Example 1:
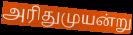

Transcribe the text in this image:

அரிதுமுயன்று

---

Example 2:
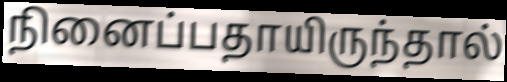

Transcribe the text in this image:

நினைப்பதாயிருந்தால்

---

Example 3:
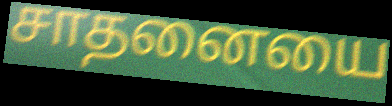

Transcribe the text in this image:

சாதனையை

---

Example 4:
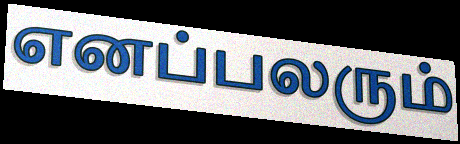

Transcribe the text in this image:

எனப்பலரும்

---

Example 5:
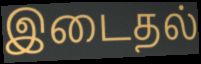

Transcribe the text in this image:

இடைதல்